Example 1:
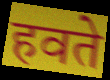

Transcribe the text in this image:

हवते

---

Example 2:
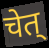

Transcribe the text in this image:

चेत्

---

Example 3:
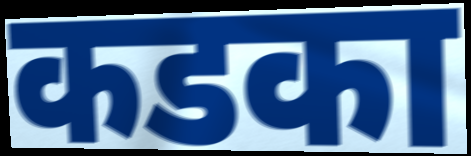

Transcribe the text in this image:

कडका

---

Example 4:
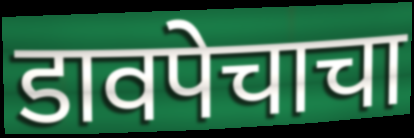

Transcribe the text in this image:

डावपेचाचा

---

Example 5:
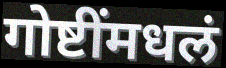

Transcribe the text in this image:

गोष्टींमधलं